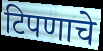
टिपणाचे